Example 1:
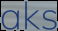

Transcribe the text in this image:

aks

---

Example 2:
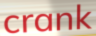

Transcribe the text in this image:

crank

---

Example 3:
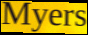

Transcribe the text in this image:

Myers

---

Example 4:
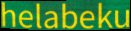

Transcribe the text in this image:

helabeku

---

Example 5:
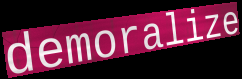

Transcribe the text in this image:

demoralize